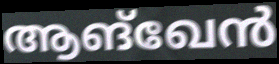
ആങ്ഖേൻ